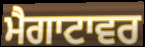
ਮੈਗਾਟਾਵਰ